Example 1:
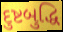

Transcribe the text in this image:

દુષ્ટબુદ્ધિ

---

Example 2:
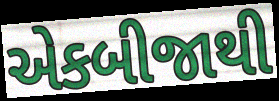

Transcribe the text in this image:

એકબીજાથી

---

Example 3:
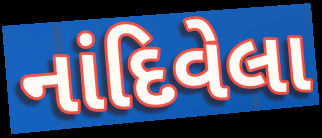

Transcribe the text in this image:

નાંદિવેલા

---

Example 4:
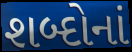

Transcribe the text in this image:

શબ્દોનાં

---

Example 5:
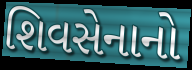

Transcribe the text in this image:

શિવસેનાનો